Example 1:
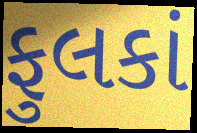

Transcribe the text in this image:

ફુલકાં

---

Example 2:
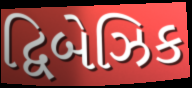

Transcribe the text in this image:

દ્વિબેઝિક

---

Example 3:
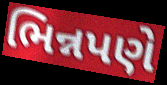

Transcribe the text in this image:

ભિન્નપણે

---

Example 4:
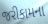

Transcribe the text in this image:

જરીકામના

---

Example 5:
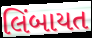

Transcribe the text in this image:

લિંબાયત